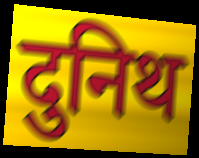
दुनिथ